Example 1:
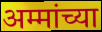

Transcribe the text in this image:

अम्मांच्या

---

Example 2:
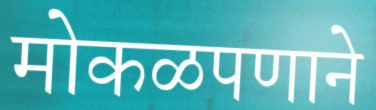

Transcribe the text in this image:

मोकळपणाने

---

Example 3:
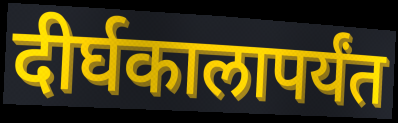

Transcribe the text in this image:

दीर्घकालापर्यंत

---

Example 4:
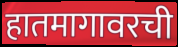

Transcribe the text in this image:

हातमागावरची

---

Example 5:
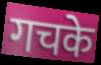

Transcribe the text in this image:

गचके